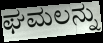
ಘಮಲನ್ನು